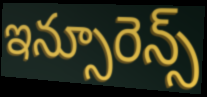
ఇన్సూరెన్స్